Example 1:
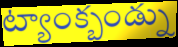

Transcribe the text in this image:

ట్యాంక్బండ్ను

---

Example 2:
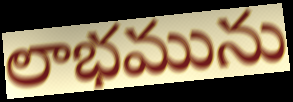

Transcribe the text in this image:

లాభమును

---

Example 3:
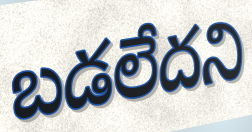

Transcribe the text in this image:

బడలేదని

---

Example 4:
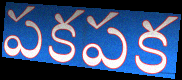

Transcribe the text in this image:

పకపక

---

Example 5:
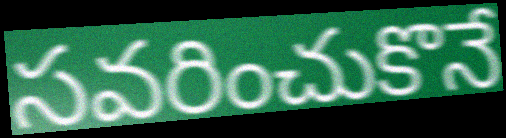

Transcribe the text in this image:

సవరించుకొనే